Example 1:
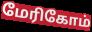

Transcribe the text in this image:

மேரிகோம்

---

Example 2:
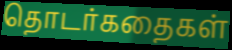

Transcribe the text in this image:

தொடர்கதைகள்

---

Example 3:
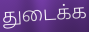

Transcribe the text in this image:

துடைக்க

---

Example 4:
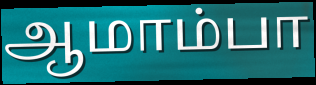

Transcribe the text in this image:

ஆமாம்பா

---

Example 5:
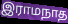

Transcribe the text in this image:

இராமநாத